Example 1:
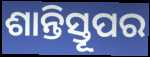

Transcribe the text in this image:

ଶାନ୍ତିସ୍ତୂପର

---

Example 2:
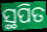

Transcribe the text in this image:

ସ୍ଥପିତ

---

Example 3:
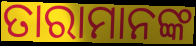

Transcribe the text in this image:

ତାରାମାନଙ୍କ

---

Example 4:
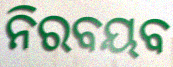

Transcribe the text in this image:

ନିରବୟବ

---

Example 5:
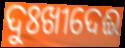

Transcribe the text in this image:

ଦୁଃଖୀଦେଈ